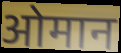
ओमान